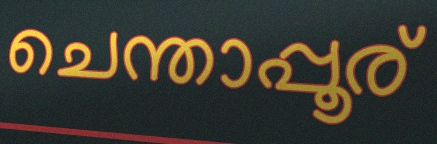
ചെന്താപ്പൂര്